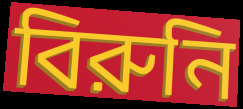
বিরুনি